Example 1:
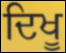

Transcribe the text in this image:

ਦਿਖੂ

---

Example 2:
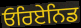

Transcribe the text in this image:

ਓਰਿਏਨਿਡ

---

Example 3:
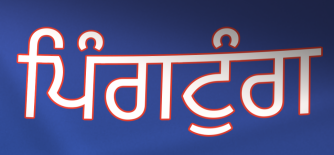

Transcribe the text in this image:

ਪਿੰਗਟੁੰਗ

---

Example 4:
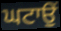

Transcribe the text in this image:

ਘਟਾਉਂ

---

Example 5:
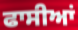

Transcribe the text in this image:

ਫਾਸੀਆਂ